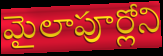
మైలాపూర్లోని